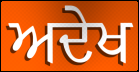
ਅਦੇਖ